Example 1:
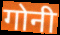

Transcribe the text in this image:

गोनी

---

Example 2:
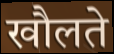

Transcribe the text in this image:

खौलते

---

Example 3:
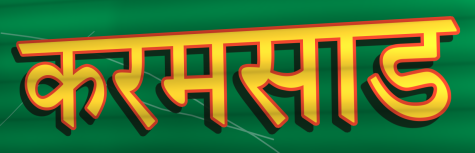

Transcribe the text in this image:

करमसाड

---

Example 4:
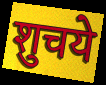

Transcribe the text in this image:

शुचये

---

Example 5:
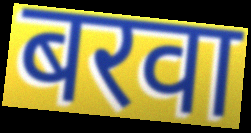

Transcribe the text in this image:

बरवा